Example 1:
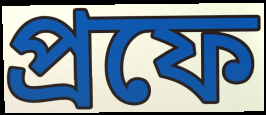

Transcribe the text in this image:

প্রফে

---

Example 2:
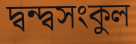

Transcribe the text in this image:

দ্বন্দ্বসংকুল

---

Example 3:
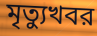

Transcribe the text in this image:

মৃত্যুখবর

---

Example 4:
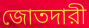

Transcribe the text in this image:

জোতদারী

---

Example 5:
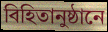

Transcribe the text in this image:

বিহিতানুষ্ঠানে